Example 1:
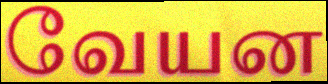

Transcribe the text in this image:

வேயன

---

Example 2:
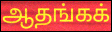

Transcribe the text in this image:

ஆதங்கக்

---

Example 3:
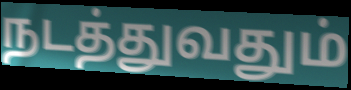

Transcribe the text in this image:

நடத்துவதும்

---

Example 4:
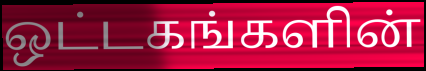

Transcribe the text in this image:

ஒட்டகங்களின்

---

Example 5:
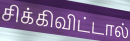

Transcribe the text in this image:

சிக்கிவிட்டால்